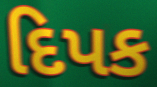
દિપક